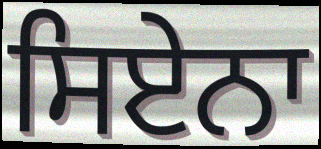
ਸਿਏਨਾ